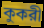
কুকরী